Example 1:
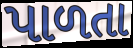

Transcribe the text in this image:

પાળતા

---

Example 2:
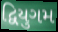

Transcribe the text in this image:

દ્વિયુગમ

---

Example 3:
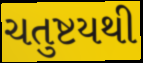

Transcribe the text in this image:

ચતુષ્ટયથી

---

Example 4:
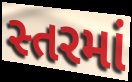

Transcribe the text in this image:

સ્તરમાં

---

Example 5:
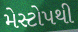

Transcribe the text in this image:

મેસ્ટોપથી